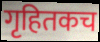
गृहितकच